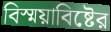
বিস্ময়াবিষ্টের